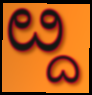
ೞ್ದ